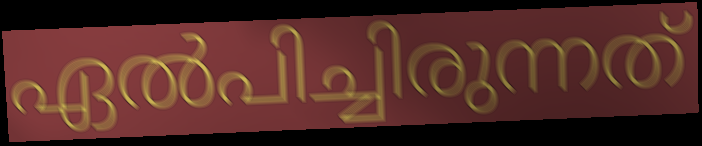
ഏൽപിച്ചിരുന്നത്